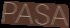
PASA